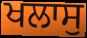
ਖਲਾਸੁ